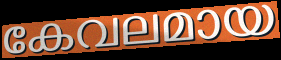
കേവലമായ